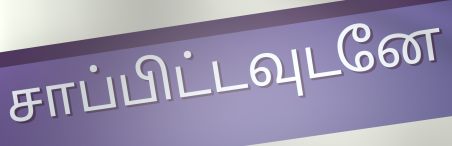
சாப்பிட்டவுடனே